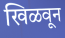
खिळवून